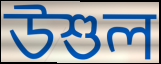
উশুল